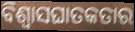
ବିଶ୍ଵାସଘାତକତାର